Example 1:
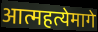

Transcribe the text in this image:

आत्महत्येमागे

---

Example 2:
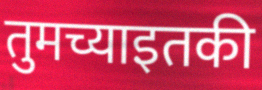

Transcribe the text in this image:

तुमच्याइतकी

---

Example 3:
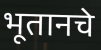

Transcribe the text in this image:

भूतानचे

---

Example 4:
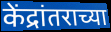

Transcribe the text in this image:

केंद्रांतराच्या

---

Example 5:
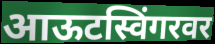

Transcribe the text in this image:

आऊटस्विंगरवर